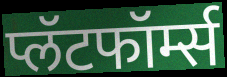
प्लॅटफॉर्म्स